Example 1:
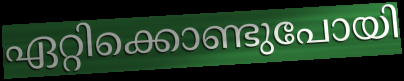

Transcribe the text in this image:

ഏറ്റിക്കൊണ്ടുപോയി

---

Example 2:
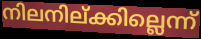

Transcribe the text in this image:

നിലനില്ക്കില്ലെന്ന്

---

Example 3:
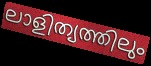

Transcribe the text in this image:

ലാളിത്യത്തിലും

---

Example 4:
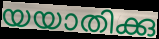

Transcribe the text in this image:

യയാതിക്കു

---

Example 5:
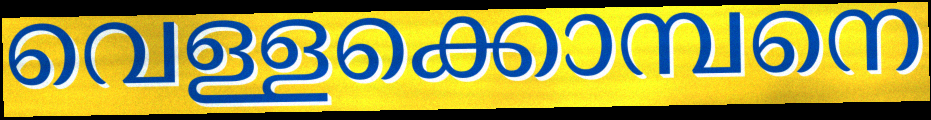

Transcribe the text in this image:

വെള്ളക്കൊമ്പനെ